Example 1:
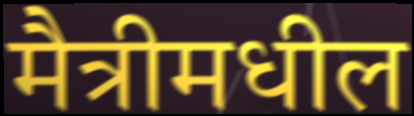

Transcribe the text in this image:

मैत्रीमधील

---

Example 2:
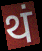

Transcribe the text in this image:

थं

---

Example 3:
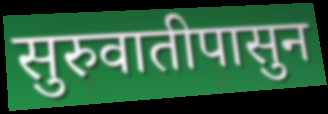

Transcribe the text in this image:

सुरुवातीपासुन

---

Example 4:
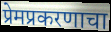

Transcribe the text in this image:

प्रेमप्रकरणाचा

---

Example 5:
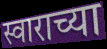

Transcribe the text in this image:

स्वाराच्या